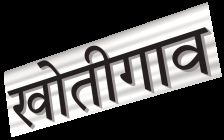
खोतीगाव